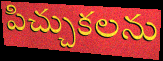
పిచ్చుకలను